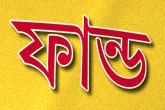
ফান্ড